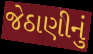
જેઠાણીનું